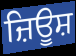
ਜ਼ਿਊਸ਼